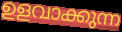
ഉളവാക്കുന്ന